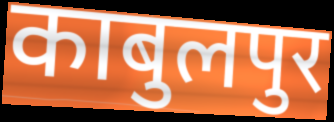
काबुलपुर